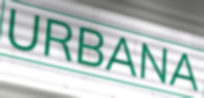
URBANA